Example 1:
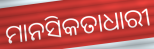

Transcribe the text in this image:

ମାନସିକତାଧାରୀ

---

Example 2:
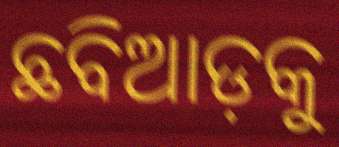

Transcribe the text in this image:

ଛବିଆଡ଼କୁ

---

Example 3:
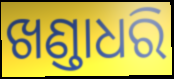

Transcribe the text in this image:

ଖଣ୍ଡାଧରି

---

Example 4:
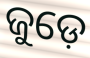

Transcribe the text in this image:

ଜୁଡ଼େ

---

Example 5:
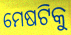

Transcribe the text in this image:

ମେଷଟିକୁ